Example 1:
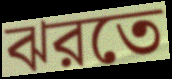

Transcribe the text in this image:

ঝরতে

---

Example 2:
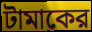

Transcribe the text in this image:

টামাকের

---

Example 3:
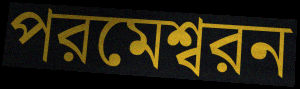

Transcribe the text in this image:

পরমেশ্বরন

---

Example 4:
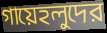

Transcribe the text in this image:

গায়েহলুদের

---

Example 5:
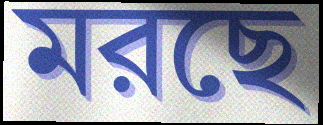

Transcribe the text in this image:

মরছে